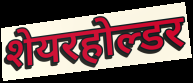
शेयरहोल्डर